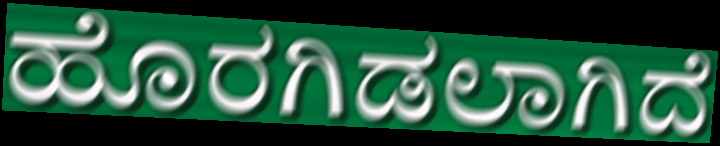
ಹೊರಗಿಡಲಾಗಿದೆ